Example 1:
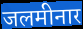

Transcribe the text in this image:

जलमीनार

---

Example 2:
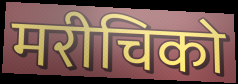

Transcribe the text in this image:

मरीचिको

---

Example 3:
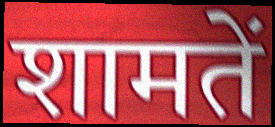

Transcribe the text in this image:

शामतें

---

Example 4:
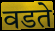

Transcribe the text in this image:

वडते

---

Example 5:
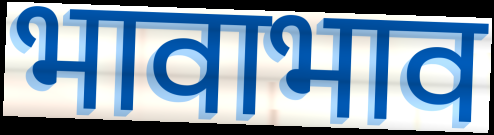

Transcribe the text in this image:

भावाभाव